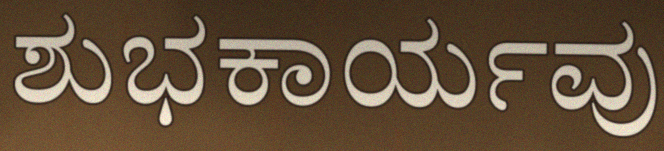
ಶುಭಕಾರ್ಯವು